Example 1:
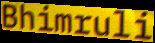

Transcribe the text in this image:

Bhimruli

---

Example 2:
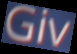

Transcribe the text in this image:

Giv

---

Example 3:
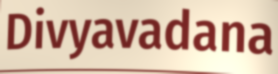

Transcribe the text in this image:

Divyavadana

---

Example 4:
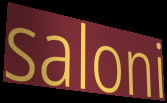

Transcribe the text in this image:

saloni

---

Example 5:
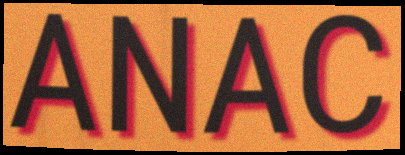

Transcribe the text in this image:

ANAC